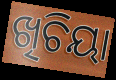
ଖିଚିୟା